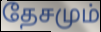
தேசமும்